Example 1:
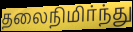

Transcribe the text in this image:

தலைநிமிர்ந்து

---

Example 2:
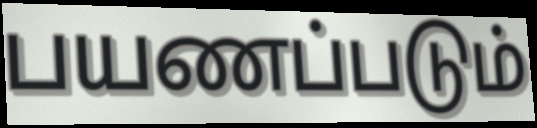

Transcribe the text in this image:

பயணப்படும்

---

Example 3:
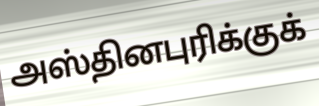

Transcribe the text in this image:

அஸ்தினபுரிக்குக்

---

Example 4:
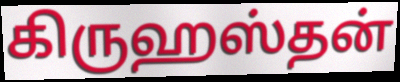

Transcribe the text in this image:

கிருஹஸ்தன்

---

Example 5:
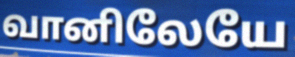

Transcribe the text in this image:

வானிலேயே